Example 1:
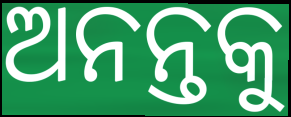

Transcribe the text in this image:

ଅନନ୍ତକୁ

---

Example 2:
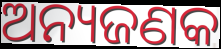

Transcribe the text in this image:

ଅନ୍ୟଜଣକ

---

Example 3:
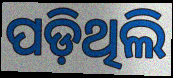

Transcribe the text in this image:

ପଡ଼ିଥିଲି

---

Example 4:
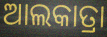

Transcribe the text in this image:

ଆଲକାତ୍ରା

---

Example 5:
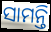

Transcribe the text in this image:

ସାମନ୍ତି